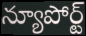
న్యూపోర్ట్